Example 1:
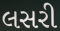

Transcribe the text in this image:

લસરી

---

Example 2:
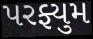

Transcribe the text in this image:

પરફ્યુમ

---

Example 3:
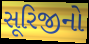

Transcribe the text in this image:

સૂરિજીનો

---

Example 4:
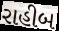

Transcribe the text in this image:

રાહીબ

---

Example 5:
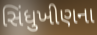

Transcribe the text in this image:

સિંધુખીણના